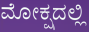
ಮೋಕ್ಷದಲ್ಲಿ